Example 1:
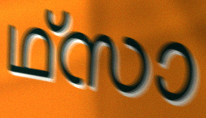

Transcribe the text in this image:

ഥ്സാ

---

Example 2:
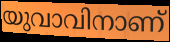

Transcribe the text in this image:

യുവാവിനാണ്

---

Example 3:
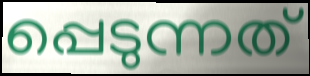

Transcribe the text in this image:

പ്പെടുന്നത്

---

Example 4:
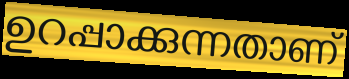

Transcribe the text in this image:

ഉറപ്പാക്കുന്നതാണ്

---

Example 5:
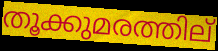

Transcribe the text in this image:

തൂക്കുമരത്തില്